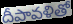
దీపావళితో